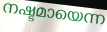
നഷ്ടമായെന്ന